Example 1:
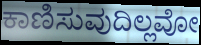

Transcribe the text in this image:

ಕಾಣಿಸುವುದಿಲ್ಲವೋ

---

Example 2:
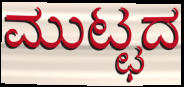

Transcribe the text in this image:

ಮುಟ್ಟದ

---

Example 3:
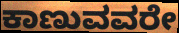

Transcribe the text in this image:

ಕಾಣುವವರೇ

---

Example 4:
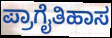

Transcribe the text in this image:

ಪ್ರಾಗೈತಿಹಾಸ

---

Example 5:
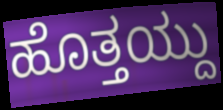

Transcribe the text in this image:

ಹೊತ್ತಯ್ದು